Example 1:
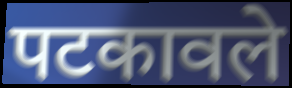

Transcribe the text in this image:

पटकावले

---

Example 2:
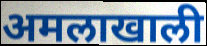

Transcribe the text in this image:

अमलाखाली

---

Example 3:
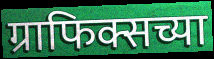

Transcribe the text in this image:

ग्राफिक्सच्या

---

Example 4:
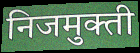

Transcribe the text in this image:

निजमुक्ती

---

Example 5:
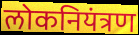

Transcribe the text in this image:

लोकनियंत्रण